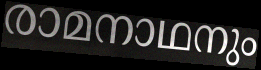
രാമനാഥനും